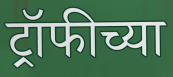
ट्रॉफीच्या